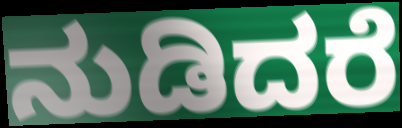
ನುಡಿದರೆ